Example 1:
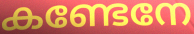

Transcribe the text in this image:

കണ്ടേനേ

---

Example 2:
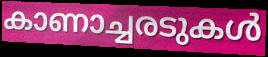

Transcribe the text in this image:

കാണാച്ചരടുകൾ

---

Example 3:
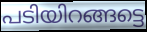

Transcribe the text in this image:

പടിയിറങ്ങട്ടെ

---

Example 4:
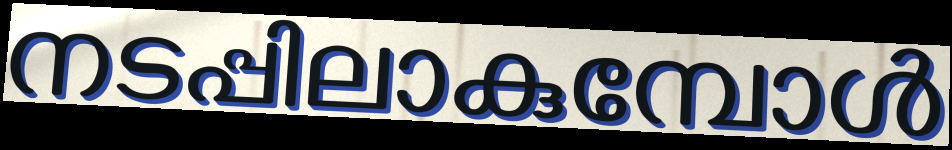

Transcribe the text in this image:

നടപ്പിലാകുമ്പോൾ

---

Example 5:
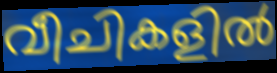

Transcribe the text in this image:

വീചികളിൽ